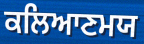
ਕਲਿਆਣਮਯ